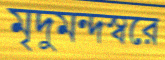
মৃদুমন্দস্বরে